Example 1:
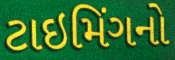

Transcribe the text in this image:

ટાઇમિંગનો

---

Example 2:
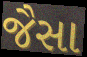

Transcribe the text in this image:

જૈસા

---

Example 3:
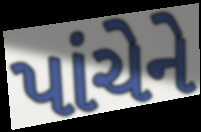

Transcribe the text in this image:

પાંચેને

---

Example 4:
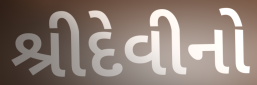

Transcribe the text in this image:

શ્રીદેવીનો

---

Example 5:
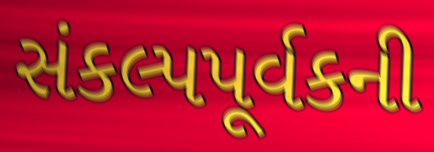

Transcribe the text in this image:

સંકલ્પપૂર્વકની